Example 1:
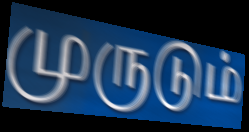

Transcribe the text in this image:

முருடும்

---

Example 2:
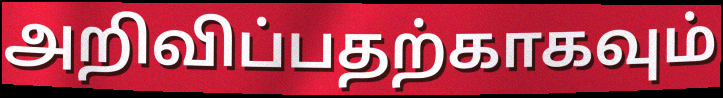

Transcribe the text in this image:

அறிவிப்பதற்காகவும்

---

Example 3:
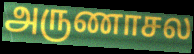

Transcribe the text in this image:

அருணாசல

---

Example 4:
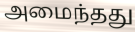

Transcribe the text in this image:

அமைந்தது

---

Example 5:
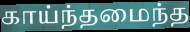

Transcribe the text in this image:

காய்ந்தமைந்த